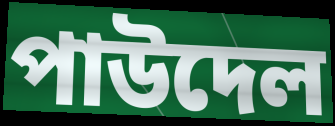
পাউদেল